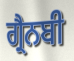
ਗ੍ਰੈਨਬੀ